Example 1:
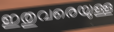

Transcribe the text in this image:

ഇതുവരെയുള്ള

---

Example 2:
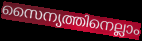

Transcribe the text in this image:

സൈന്യത്തിനെല്ലാം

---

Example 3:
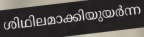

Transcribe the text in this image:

ശിഥിലമാക്കിയുയർന്ന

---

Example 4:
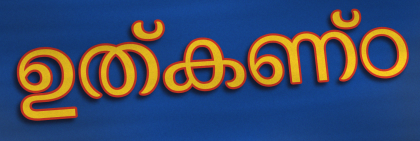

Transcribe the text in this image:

ഉത്കണ്ഠ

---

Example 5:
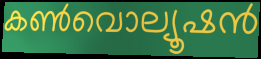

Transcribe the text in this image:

കൺവൊല്യൂഷൻ